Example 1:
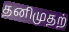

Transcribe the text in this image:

தனிமுதற்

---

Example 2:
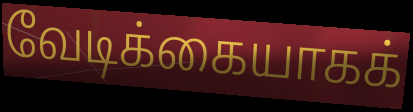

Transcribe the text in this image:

வேடிக்கையாகக்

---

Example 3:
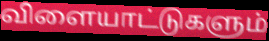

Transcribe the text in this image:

விளையாட்டுகளும்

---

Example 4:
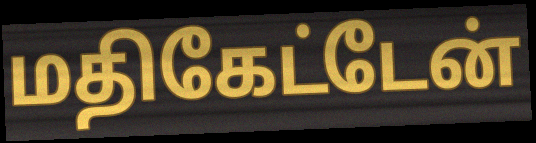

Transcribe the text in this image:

மதிகேட்டேன்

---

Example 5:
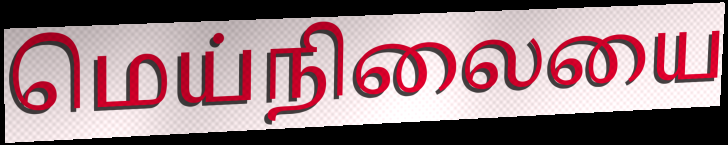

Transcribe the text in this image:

மெய்நிலையை